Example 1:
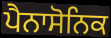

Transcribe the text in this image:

ਪੈਨਾਸੋਨਿਕ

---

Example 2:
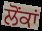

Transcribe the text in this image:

ਲੋਂਕਾਂ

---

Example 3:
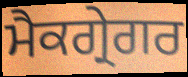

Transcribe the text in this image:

ਮੈਕਗ੍ਰੇਗਰ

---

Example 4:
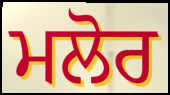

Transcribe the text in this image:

ਮਲੋਰ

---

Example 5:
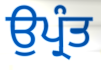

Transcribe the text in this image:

ਉਪ੍ਰ੍ਰੰਤ